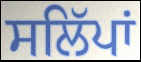
ਸਲਿੱਪਾਂ